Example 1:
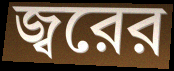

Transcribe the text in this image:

জ্বরের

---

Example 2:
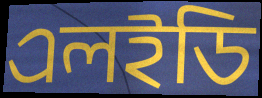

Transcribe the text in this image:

এলইডি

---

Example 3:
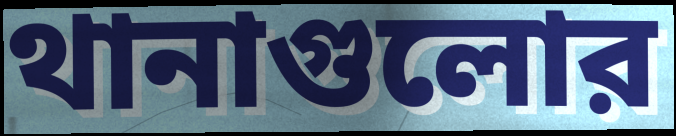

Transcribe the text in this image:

থানাগুলোর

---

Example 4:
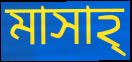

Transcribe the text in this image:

মাসাহ্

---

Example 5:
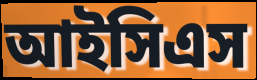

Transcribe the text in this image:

আইসিএস